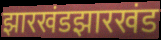
झारखंडझारखंड